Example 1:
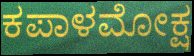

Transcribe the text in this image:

ಕಪಾಳಮೋಕ್ಷ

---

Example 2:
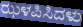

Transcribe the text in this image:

ಝಳಪಿಸಿದಳು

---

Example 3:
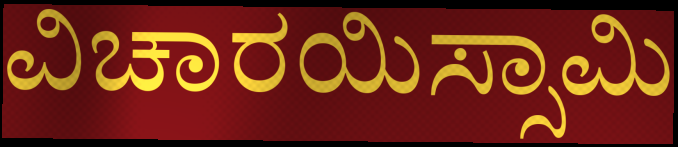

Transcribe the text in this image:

ವಿಚಾರಯಿಸ್ಸಾಮಿ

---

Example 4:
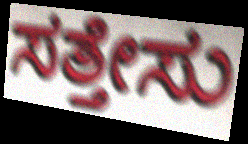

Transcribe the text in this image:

ಸತ್ತೇಸು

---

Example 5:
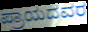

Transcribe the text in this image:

ಪ್ರಾಯದವರ